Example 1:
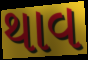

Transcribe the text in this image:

થાવ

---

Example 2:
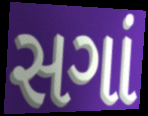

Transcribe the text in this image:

સગાં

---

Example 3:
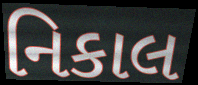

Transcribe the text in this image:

નિકાલ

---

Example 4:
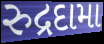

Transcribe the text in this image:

રુદ્રદામા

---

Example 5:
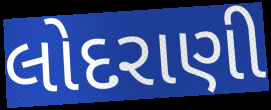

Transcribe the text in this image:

લોદરાણી